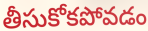
తీసుకోకపోవడం